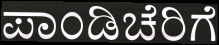
ಪಾಂಡಿಚೆರಿಗೆ